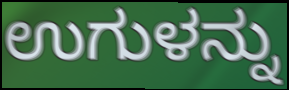
ಉಗುಳನ್ನು